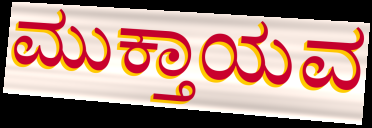
ಮುಕ್ತಾಯವ